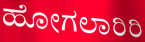
ಹೋಗಲಾರಿರಿ